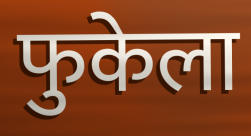
फुकेला